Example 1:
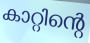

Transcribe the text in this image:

കാറ്റിന്റെ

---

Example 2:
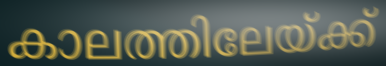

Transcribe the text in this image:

കാലത്തിലേയ്ക്ക്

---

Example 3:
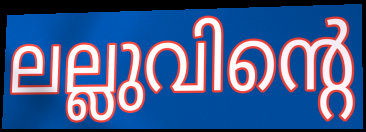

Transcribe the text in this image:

ലല്ലുവിന്റെ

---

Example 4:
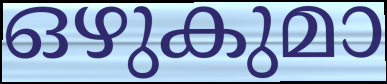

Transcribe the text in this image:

ഒഴുകുമാ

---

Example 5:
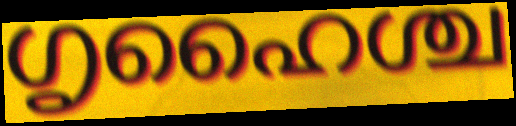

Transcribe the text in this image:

ഗൃഹൈശ്ച